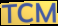
TCM